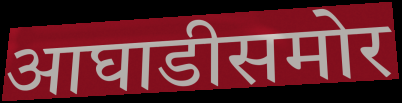
आघाडीसमोर